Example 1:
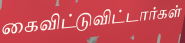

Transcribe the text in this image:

கைவிட்டுவிட்டார்கள்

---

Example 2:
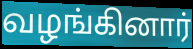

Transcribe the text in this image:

வழங்கினார்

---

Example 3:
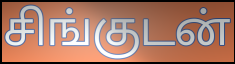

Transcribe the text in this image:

சிங்குடன்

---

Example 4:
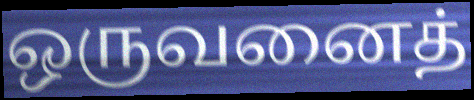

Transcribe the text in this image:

ஒருவனைத்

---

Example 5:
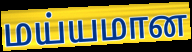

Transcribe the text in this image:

மய்யமான